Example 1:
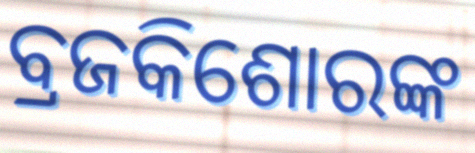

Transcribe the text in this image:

ବ୍ରଜକିଶୋରଙ୍କ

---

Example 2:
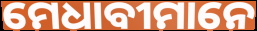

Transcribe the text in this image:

ମେଧାବୀମାନେ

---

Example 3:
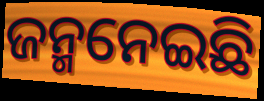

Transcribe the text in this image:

ଜନ୍ମନେଇଛି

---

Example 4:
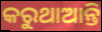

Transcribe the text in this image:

କରୁଥାଆନ୍ତି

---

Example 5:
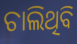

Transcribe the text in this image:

ଚାଲିଥିବି